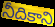
నీదికాని